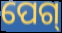
ପେଗ୍